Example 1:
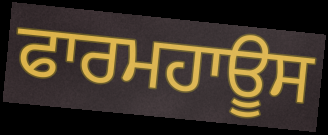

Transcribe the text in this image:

ਫਾਰਮਹਾਊਸ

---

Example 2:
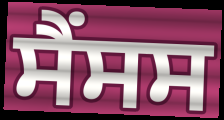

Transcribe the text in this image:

ਸੈਂਸਸ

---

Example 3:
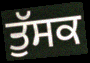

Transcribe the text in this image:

ਤੁੱਸਕ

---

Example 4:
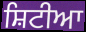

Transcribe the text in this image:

ਸ਼ਿਟੀਆ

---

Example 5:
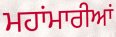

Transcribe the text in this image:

ਮਹਾਂਮਾਰੀਆਂ